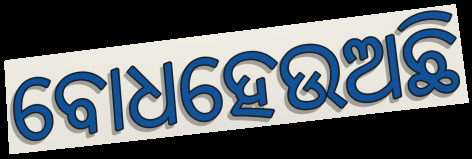
ବୋଧହେଉଅଛି